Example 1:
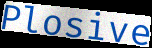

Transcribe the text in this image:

Plosive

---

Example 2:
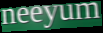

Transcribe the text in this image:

neeyum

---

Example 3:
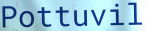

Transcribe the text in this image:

Pottuvil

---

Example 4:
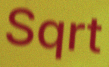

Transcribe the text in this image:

Sqrt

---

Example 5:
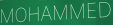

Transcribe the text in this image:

MOHAMMED